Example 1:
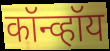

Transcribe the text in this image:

कॉन्व्हॉय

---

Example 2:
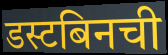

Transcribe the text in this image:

डस्टबिनची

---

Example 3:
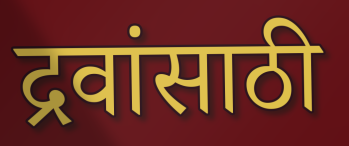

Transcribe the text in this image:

द्रवांसाठी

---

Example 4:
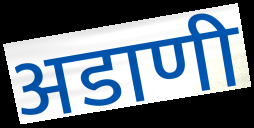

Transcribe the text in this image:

अडाणी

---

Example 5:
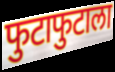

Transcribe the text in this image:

फुटाफुटाला